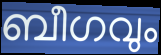
ബീഗവും